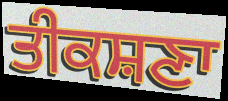
ਤੀਕਸ਼ਣਾ